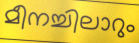
മീനച്ചിലാറും